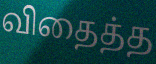
விதைத்த